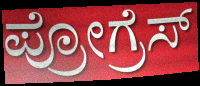
ಪ್ರೋಗ್ರೆಸ್